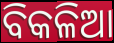
ବିକଳିଆ